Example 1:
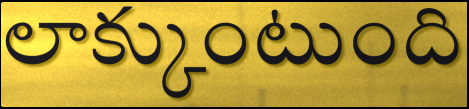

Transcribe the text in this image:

లాక్కుంటుంది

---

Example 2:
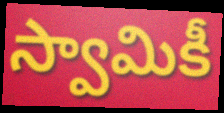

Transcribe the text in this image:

స్వామికీ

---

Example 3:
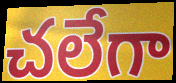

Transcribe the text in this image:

చలేగా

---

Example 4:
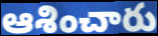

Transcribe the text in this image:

ఆశించారు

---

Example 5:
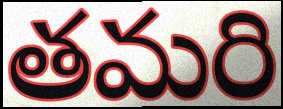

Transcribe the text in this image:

తమరి